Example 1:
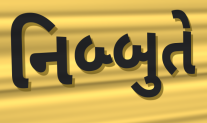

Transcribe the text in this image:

નિબ્બુતે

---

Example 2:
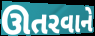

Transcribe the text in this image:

ઊતરવાને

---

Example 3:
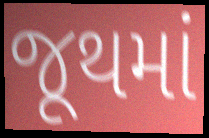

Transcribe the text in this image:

જૂથમાં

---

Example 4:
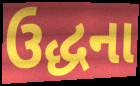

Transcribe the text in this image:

ઉદ્ધના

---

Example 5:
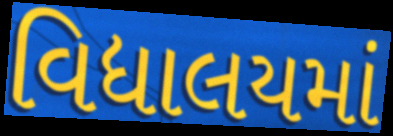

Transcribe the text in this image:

વિદ્યાલયમાં